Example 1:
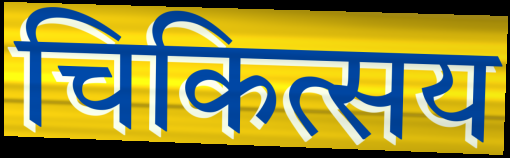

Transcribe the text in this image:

चिकित्सय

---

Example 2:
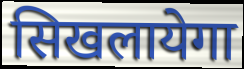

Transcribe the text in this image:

सिखलायेगा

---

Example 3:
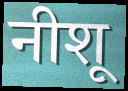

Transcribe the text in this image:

नीशू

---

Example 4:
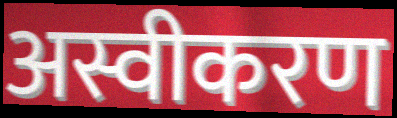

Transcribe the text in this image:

अस्वीकरण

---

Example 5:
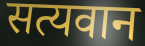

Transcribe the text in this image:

सत्यवान